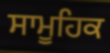
ਸਾਮੂਹਿਕ